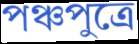
পঞ্চপুত্রে